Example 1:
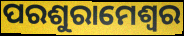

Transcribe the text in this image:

ପରଶୁରାମେଶ୍ୱର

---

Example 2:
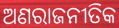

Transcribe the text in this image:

ଅଣରାଜନୀତିକ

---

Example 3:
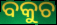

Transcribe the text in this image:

ବକୁଚ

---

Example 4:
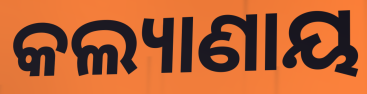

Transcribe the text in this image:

କଲ୍ୟାଣାୟ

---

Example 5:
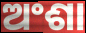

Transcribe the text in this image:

ଅଂଶା